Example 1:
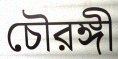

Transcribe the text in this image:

চৌরঙ্গী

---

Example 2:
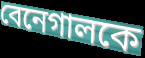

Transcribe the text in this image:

বেনেগালকে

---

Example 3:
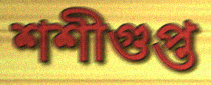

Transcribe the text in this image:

শশীগুপ্ত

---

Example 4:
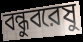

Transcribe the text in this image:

বন্ধুবরেষু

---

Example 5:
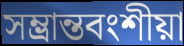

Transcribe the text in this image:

সম্ভ্রান্তবংশীয়া